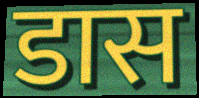
डास